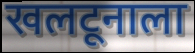
खलटूनाला